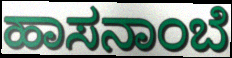
ಹಾಸನಾಂಬೆ